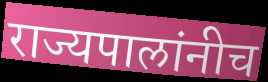
राज्यपालांनीच